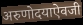
अरुणोदयाऐवजी